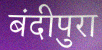
बंदीपुरा